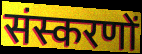
संस्करणों